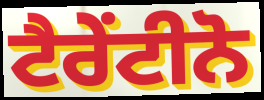
ਟੈਰੇਂਟੀਨੋ